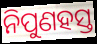
ନିପୁଣହସ୍ତ